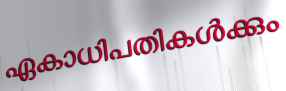
ഏകാധിപതികൾക്കും